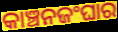
କାଞ୍ଚନଜଂଘାର